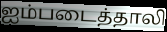
ஐம்படைத்தாலி